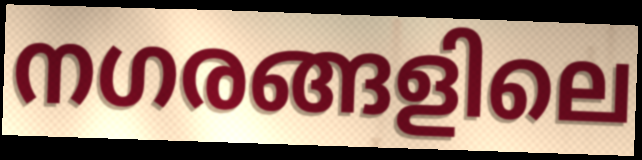
നഗരങ്ങളിലെ